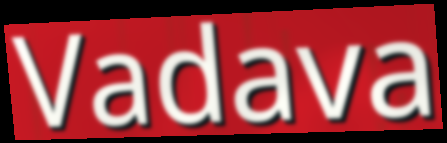
Vadava